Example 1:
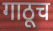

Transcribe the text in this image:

गाठूच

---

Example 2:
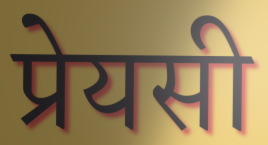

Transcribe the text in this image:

प्रेयसी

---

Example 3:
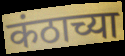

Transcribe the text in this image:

कंठाच्या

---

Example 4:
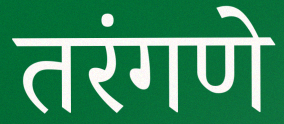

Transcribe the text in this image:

तरंगणे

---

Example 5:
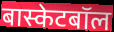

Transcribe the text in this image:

बास्केटबॉल